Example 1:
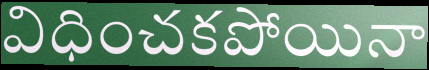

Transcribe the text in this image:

విధించకపోయినా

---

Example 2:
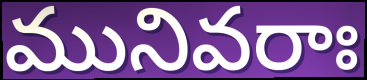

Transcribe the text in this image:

మునివరాః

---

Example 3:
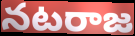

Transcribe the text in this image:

నటరాజ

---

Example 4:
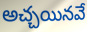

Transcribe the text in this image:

అచ్చయినవే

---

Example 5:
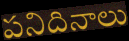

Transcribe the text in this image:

పనిదినాలు